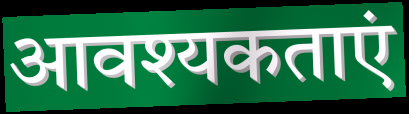
आवश्‍यकताएं